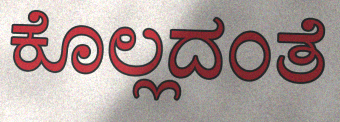
ಕೊಲ್ಲದಂತೆ